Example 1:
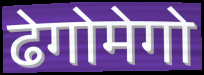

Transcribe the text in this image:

ढेगोमेगो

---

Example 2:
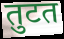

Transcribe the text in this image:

तुटत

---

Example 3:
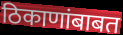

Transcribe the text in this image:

ठिकाणांबाबत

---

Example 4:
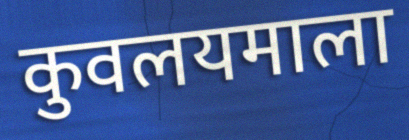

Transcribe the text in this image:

कुवलयमाला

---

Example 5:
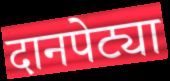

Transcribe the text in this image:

दानपेट्या